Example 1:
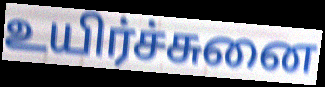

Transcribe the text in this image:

உயிர்ச்சுனை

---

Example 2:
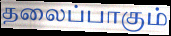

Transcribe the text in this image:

தலைப்பாகும்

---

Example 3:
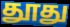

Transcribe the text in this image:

தூது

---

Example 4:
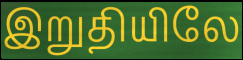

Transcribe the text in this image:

இறுதியிலே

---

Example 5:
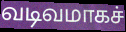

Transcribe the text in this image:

வடிவமாகச்